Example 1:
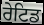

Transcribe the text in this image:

ਰੇਟਿਡ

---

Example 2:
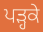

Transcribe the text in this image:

ਪੜ੍ਹਕੇ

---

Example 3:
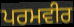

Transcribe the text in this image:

ਪਰਮਵੀਰ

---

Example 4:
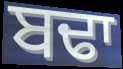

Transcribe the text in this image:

ਬਢਾ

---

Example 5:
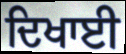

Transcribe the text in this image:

ਦਿਖਾਈ